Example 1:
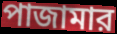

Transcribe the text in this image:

পাজামার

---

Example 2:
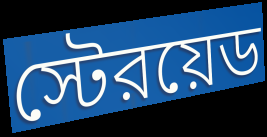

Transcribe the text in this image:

স্টেরয়েড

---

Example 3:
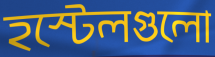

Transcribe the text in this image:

হস্টেলগুলো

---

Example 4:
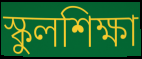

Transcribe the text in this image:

স্কুলশিক্ষা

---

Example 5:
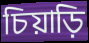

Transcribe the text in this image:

চিয়াড়ি